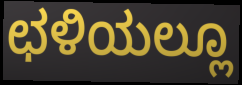
ಛಳಿಯಲ್ಲೂ